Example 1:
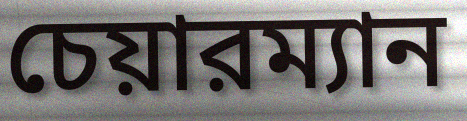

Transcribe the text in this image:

চেয়ারম্যান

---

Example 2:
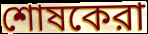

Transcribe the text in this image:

শোষকেরা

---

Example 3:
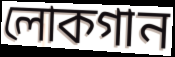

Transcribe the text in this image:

লোকগান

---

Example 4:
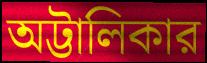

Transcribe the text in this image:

অট্টালিকার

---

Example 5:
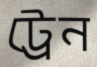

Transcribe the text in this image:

ট্রেন